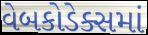
વેબકોડેક્સમાં